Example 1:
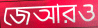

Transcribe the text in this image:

জেআরও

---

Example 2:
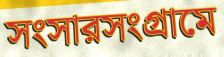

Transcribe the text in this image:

সংসারসংগ্রামে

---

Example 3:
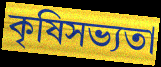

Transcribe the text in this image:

কৃষিসভ্যতা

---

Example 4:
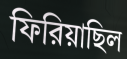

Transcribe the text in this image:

ফিরিয়াছিল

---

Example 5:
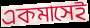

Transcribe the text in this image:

একমাসেই